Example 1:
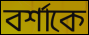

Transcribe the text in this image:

বর্শাকে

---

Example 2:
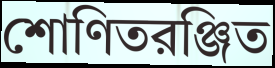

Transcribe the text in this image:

শোণিতরঞ্জিত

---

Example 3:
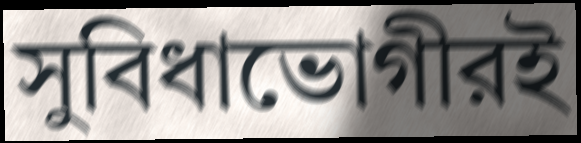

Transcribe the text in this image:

সুবিধাভোগীরই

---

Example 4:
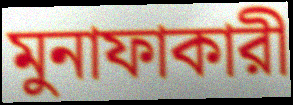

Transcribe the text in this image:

মুনাফাকারী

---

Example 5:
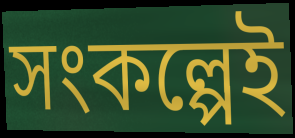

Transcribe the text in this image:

সংকল্পেই